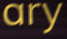
ary